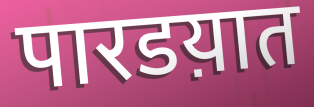
पारडय़ात